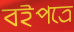
বইপত্রে